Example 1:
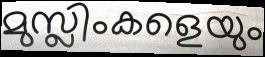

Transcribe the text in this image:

മുസ്ലിംകളെയും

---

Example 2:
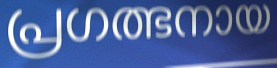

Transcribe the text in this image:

പ്രഗത്ഭനായ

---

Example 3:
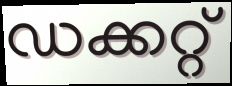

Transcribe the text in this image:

ഡക്കറ്റ്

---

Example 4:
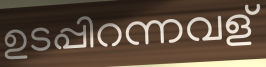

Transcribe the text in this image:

ഉടപ്പിറന്നവള്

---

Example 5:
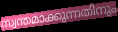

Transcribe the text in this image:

സ്വന്തമാക്കുന്നതിനും